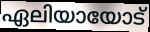
ഏലിയായോട്